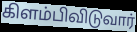
கிளம்பிவிடுவார்